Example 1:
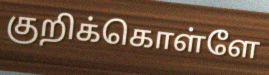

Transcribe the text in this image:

குறிக்கொள்ளே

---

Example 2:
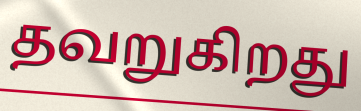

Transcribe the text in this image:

தவறுகிறது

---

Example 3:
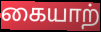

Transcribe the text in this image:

கையாற்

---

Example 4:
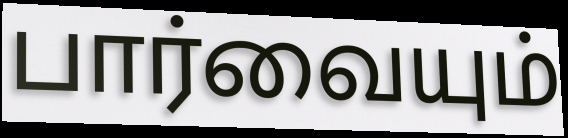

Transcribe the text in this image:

பார்வையும்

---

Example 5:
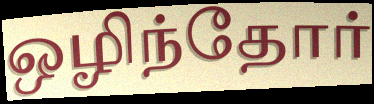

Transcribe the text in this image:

ஒழிந்தோர்